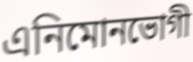
এনিমোনভোগী